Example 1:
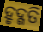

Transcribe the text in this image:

ହୃଦ୍ଗତି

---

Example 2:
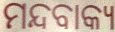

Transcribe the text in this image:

ମନ୍ଦବାକ୍ୟ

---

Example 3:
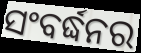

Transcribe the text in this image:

ସଂବର୍ଦ୍ଧନର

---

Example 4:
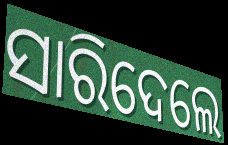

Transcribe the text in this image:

ସାରିଦେଲେ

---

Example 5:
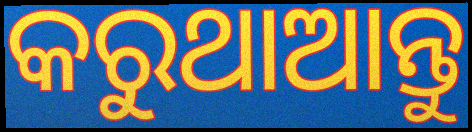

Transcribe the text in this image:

କରୁଥାଆନ୍ତୁ